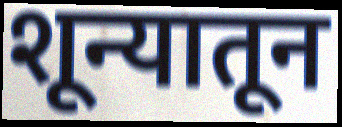
शून्यातून